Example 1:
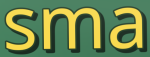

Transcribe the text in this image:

sma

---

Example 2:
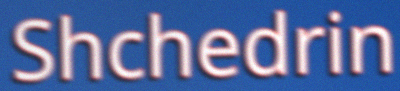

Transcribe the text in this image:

Shchedrin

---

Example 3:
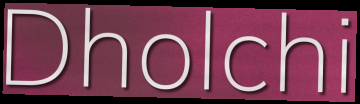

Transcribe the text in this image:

Dholchi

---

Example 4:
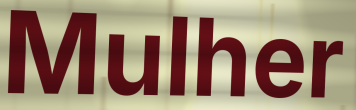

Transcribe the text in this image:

Mulher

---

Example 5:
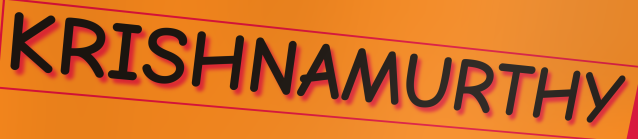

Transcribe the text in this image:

KRISHNAMURTHY